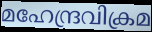
മഹേന്ദ്രവിക്രമ